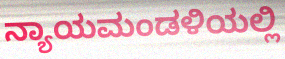
ನ್ಯಾಯಮಂಡಳಿಯಲ್ಲಿ